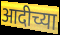
आदीच्या